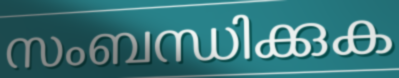
സംബന്ധിക്കുക